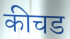
कीचड